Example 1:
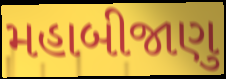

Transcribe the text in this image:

મહાબીજાણુ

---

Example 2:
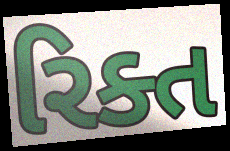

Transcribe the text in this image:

રિક્ત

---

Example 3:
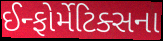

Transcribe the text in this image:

ઈન્ફોર્મેટિક્સના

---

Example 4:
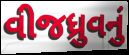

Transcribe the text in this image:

વીજધ્રુવનું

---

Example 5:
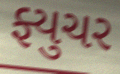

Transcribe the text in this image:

ફ્યુચર